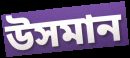
উসমান